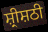
ਸ਼੍ਰੀਸ਼ਠੀ